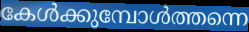
കേൾക്കുമ്പോൾത്തന്നെ